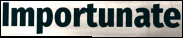
Importunate